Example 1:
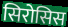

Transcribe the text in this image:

सिरोसिस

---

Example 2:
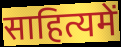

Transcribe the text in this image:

साहित्यमें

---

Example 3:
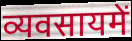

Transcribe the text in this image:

व्यवसायमें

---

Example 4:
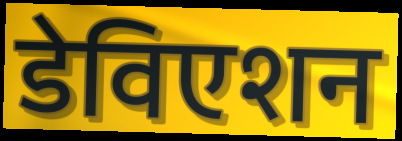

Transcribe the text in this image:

डेविएशन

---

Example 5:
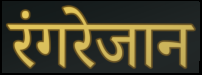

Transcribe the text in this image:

रंगरेजान